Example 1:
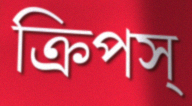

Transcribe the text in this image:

ক্রিপস্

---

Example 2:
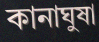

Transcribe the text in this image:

কানাঘুষা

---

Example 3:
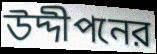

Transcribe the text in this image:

উদ্দীপনের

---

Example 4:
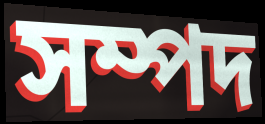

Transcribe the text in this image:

সম্পদ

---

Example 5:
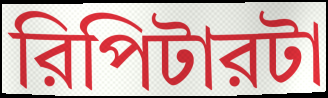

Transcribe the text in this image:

রিপিটারটা